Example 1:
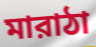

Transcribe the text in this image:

মারাঠা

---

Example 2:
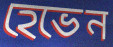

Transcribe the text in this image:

হেভেন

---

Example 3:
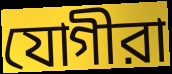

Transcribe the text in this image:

যোগীরা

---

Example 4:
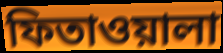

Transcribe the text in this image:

ফিতাওয়ালা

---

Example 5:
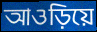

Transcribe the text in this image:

আওড়িয়ে